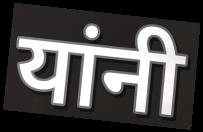
यांनी